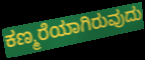
ಕಣ್ಮರೆಯಾಗಿರುವುದು